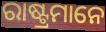
ରାଷ୍ଟ୍ରମାନେ